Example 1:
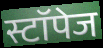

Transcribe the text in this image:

स्टॉपेज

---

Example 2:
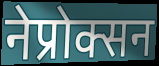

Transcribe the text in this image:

नेप्रोक्सन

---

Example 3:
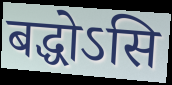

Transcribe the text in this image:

बद्धोऽसि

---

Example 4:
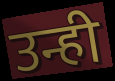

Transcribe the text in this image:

उन्ही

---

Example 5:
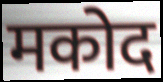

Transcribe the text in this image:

मकोद